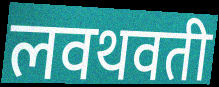
लवथवती